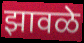
झावळे